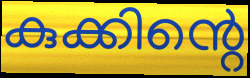
കുക്കിന്റെ